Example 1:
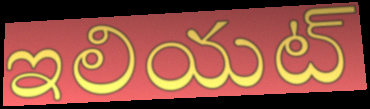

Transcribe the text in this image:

ఇలియట్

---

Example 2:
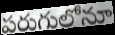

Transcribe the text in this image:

పరుగులోనూ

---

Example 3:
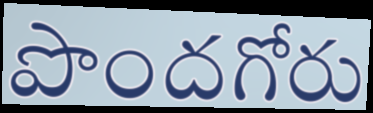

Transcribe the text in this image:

పొందగోరు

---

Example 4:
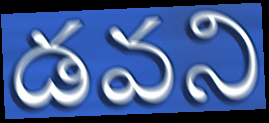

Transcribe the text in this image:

డవని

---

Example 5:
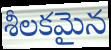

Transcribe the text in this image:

శీలకమైన